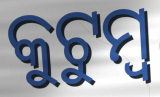
କୁଟୁମ୍ୱ